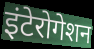
इंटेरोगेशन